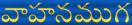
వాహనముగ